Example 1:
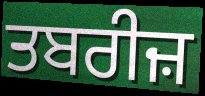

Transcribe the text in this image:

ਤਬਰੀਜ਼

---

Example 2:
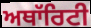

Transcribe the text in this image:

ਅਥਾੱਰਿਟੀ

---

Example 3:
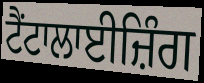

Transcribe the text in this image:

ਟੈਂਟਾਲਾਈਜ਼ਿੰਗ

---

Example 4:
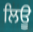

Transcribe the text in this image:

ਲਿਊ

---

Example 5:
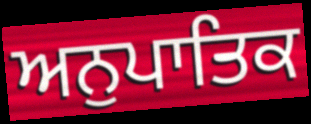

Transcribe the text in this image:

ਅਨੁਪਾਤਿਕ